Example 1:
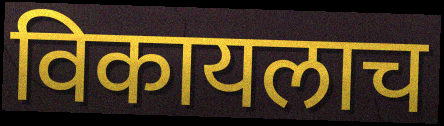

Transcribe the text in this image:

विकायलाच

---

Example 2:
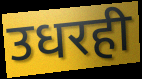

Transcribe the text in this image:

उधरही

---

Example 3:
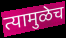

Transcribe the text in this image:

त्यामुळेच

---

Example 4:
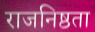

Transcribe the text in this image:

राजनिष्ठता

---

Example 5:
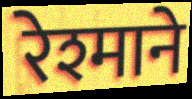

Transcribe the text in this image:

रेश्माने